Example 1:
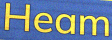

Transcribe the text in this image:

Heam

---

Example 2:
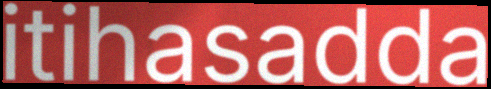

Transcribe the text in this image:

itihasadda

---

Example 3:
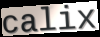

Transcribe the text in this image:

calix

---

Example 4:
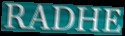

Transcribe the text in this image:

RADHE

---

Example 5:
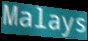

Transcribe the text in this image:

Malays